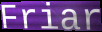
Friar